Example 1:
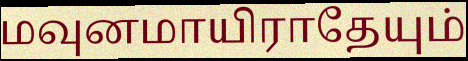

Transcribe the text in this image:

மவுனமாயிராதேயும்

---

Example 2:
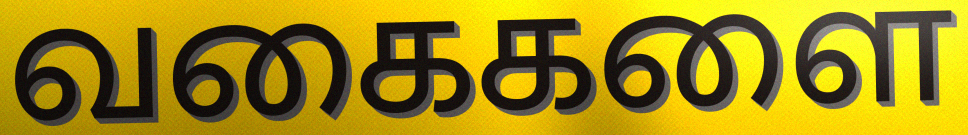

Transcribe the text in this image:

வகைகளை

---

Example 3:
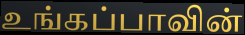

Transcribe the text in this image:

உங்கப்பாவின்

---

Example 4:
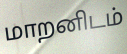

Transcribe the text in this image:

மாறனிடம்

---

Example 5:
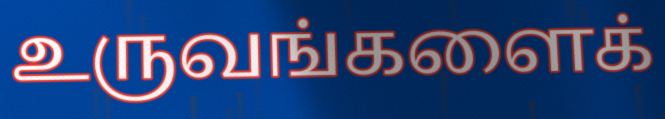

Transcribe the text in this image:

உருவங்களைக்